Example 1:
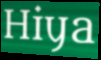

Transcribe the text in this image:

Hiya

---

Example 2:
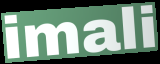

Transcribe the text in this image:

imali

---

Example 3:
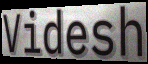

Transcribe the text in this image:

Videsh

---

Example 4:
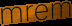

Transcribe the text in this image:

mrem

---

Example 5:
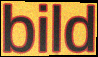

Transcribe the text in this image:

bild